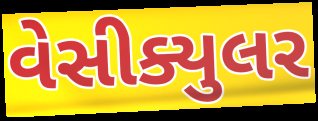
વેસીક્યુલર